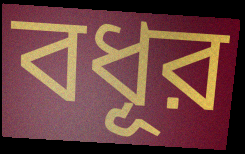
বধূর